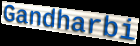
Gandharbi